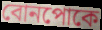
বোনপোকে